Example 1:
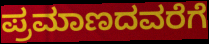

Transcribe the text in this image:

ಪ್ರಮಾಣದವರೆಗೆ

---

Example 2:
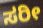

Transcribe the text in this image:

ಸರೀ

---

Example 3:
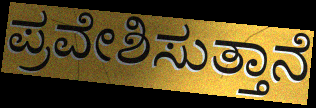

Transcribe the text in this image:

ಪ್ರವೇಶಿಸುತ್ತಾನೆ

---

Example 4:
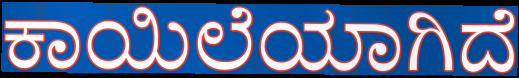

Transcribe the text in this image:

ಕಾಯಿಲೆಯಾಗಿದೆ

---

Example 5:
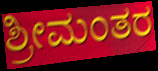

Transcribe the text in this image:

ಶ್ರೀಮಂತರ